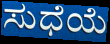
ಸುಧೆಯೆ